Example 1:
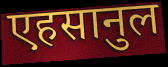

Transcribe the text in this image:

एहसानुल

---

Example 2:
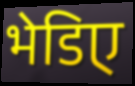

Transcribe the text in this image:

भेडिए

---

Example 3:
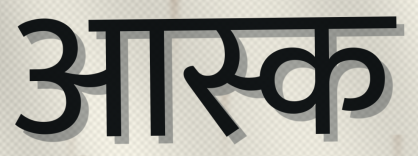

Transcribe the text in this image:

आस्क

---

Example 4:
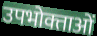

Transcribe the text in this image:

उपभोक्‍ताओं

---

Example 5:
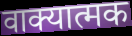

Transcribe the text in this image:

वाक्यात्मक